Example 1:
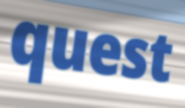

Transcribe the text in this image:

quest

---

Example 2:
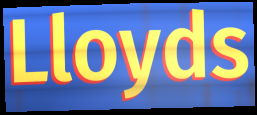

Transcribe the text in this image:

Lloyds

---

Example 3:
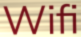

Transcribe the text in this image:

Wifi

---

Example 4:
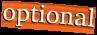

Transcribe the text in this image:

optional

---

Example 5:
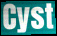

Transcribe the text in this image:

Cyst